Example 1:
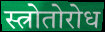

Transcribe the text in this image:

स्त्रोतोरोध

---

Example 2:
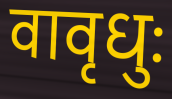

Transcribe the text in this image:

वावृधुः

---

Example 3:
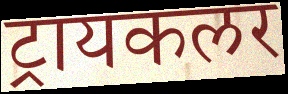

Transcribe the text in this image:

ट्रायकलर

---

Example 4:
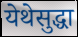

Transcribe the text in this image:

येथेसुद्धा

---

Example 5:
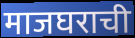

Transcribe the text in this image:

माजघराची